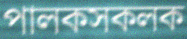
পালকসকলক